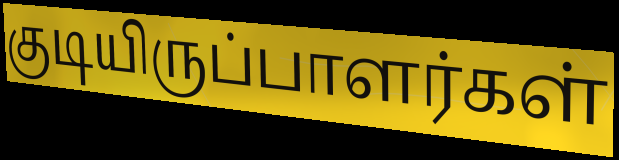
குடியிருப்பாளர்கள்